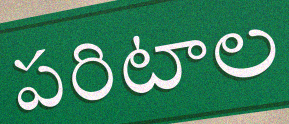
పరిటాల